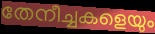
തേനീച്ചകളെയും